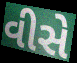
વીસે